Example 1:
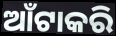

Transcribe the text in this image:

ଆଁଟାକରି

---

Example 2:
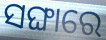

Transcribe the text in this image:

ସଙ୍ଘାରେ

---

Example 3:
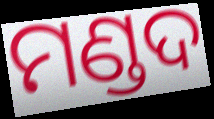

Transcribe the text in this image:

ମଣ୍ଡଦ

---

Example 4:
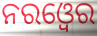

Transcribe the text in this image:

ନରଓ୍ବେର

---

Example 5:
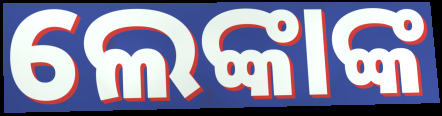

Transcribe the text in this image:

ଲେଙ୍କାଙ୍କ